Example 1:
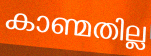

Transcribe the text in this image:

കാണ്മതില്ല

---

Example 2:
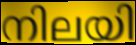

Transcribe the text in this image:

നിലയി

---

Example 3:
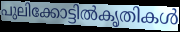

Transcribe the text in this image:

പുലിക്കോട്ടിൽകൃതികൾ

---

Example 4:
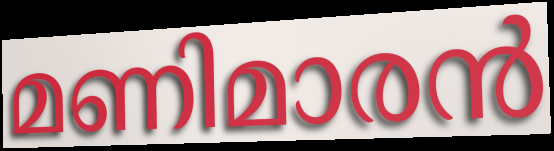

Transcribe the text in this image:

മണിമാരൻ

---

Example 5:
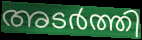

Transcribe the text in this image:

അടർത്തി